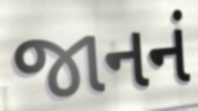
જાનનં